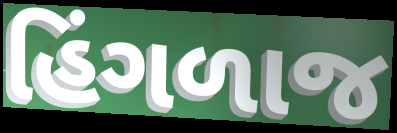
હિંગળાજ